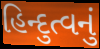
હિન્દુત્વનું